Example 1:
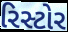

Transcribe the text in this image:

રિસ્ટોર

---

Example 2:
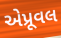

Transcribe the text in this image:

એપ્રૂવલ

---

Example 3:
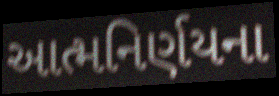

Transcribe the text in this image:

આત્મનિર્ણયના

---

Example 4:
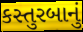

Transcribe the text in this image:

કસ્તુરબાનું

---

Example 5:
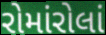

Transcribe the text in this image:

રોમાંરોલાં